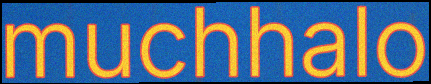
muchhalo